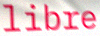
libre